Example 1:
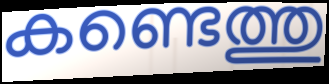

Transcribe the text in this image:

കണ്ടെത്തു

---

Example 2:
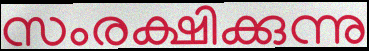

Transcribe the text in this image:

സംരക്ഷിക്കുന്നു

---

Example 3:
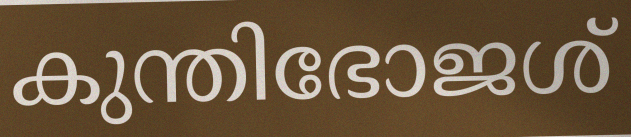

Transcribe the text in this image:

കുന്തിഭോജശ്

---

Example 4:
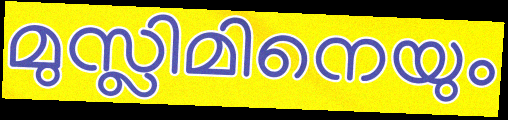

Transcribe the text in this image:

മുസ്ലിമിനെയും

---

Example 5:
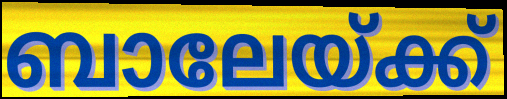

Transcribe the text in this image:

ബാലേയ്ക്ക്